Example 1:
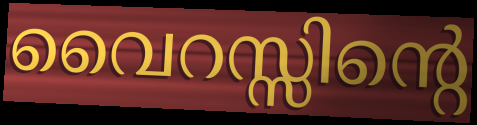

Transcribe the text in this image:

വൈറസ്സിന്റെ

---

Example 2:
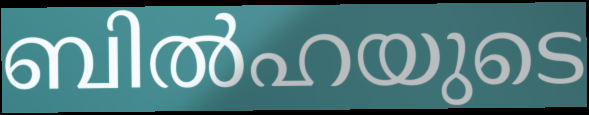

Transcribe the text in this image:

ബിൽഹയുടെ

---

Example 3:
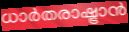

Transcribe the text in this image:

ധാർതരാഷ്ട്രാൻ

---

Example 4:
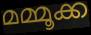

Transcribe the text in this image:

മമ്മൂക്ക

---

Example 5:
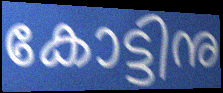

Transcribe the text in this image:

കോട്ടിനു